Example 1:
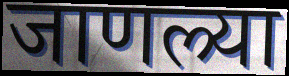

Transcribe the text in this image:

जाणल्या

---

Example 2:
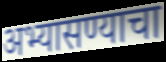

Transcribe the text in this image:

अभ्यासण्याचा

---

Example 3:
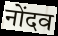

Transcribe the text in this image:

नोंदव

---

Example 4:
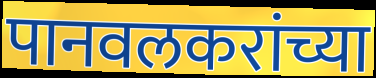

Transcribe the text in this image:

पानवलकरांच्या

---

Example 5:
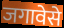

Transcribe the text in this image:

जगावेसे